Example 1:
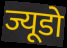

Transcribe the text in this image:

ज्यूडो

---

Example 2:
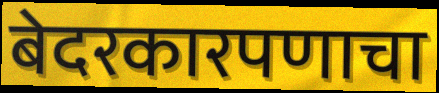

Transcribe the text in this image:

बेदरकारपणाचा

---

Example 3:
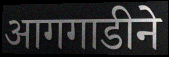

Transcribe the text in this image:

आगगाडीने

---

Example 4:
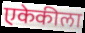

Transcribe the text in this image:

एकेकीला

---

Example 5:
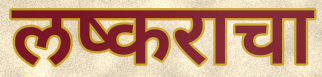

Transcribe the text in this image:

लष्कराचा